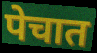
पेचात